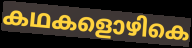
കഥകളൊഴികെ